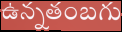
ఉన్నతంబగు